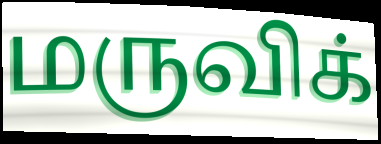
மருவிக்